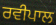
ਰਵੀਪਾਲ